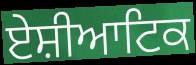
ਏਸ਼ੀਆਟਿਕ